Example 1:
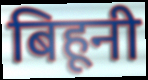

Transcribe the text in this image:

बिहूनी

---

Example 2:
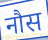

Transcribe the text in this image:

नौस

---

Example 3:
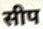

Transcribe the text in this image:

सीप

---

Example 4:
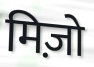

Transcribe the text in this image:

मिज़ो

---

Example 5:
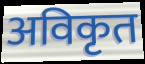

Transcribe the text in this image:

अविकृत